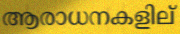
ആരാധനകളില്